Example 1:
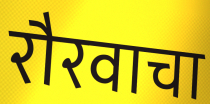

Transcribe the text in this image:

रौरवाचा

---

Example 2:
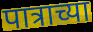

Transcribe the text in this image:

पात्राच्‍या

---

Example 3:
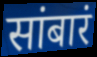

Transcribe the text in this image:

सांबारं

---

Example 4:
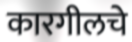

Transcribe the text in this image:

कारगीलचे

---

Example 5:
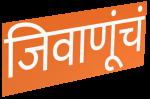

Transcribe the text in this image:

जिवाणूंचं